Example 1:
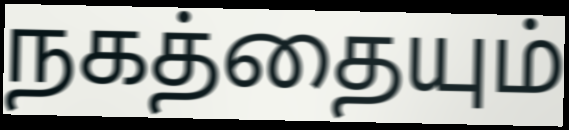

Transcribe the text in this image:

நகத்தையும்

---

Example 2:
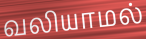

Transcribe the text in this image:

வலியாமல்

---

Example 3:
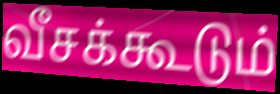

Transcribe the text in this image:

வீசக்கூடும்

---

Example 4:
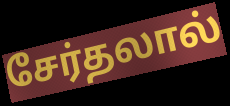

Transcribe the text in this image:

சேர்தலால்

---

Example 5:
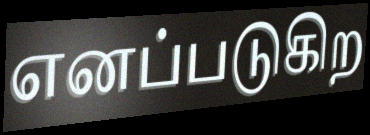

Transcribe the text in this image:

எனப்படுகிற